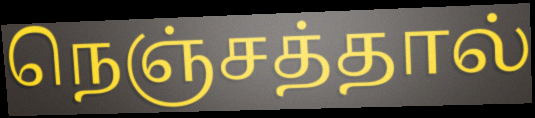
நெஞ்சத்தால்